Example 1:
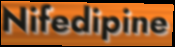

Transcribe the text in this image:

Nifedipine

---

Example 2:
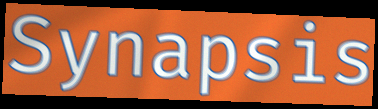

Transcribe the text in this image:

Synapsis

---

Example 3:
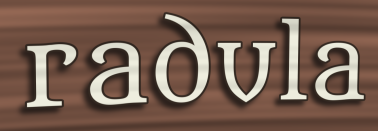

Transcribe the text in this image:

radula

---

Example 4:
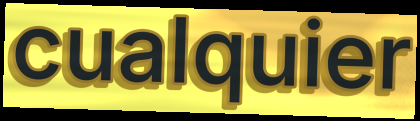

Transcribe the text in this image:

cualquier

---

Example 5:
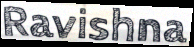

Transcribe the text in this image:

Ravishna